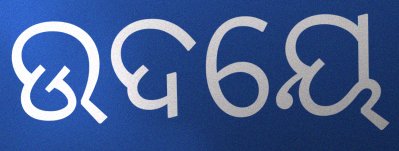
ଉଦୟେ